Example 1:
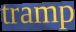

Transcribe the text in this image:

tramp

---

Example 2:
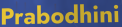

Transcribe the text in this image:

Prabodhini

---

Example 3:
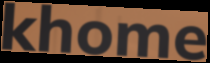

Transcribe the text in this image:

khome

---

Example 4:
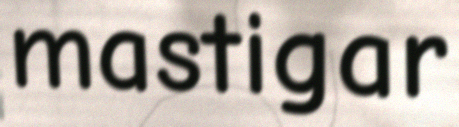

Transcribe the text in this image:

mastigar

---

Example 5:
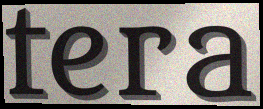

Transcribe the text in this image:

tera